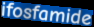
ifosfamide